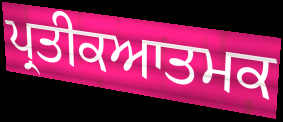
ਪ੍ਰਤੀਕਆਤਮਕ